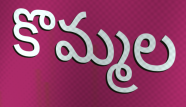
కొమ్మల